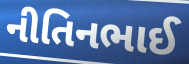
નીતિનભાઈ